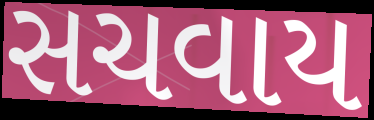
સચવાય